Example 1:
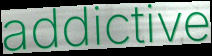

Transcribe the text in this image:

addictive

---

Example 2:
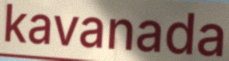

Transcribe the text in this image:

kavanada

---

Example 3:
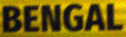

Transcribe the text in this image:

BENGAL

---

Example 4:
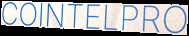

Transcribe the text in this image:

COINTELPRO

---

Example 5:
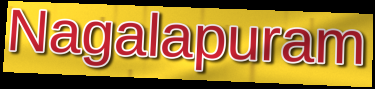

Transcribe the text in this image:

Nagalapuram